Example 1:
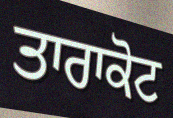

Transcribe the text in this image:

ਤਾਰਾਕੋਟ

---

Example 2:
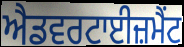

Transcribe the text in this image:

ਐਡਵਰਟਾਈਜ਼ਮੈਂਟ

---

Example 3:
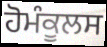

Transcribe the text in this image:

ਹੋਮੰਕੂਲਸ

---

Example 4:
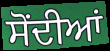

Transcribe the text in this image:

ਸੋਂਦੀਆਂ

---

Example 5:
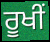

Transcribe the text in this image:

ਰੂਖੀਂ